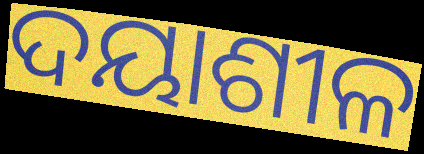
ଦୟାଶୀଳ